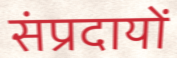
संप्रदायों